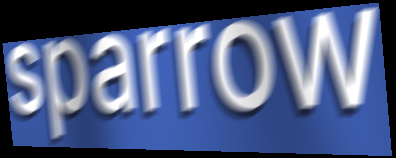
sparrow